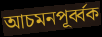
আচমনপূর্ব্বক